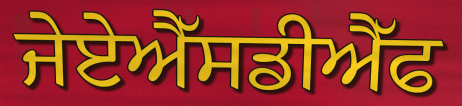
ਜੇਏਐੱਸਡੀਐੱਫ